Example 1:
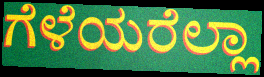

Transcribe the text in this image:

ಗೆಳೆಯರೆಲ್ಲಾ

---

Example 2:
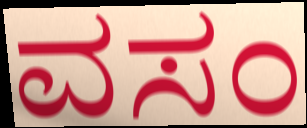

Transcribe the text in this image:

ವಸಂ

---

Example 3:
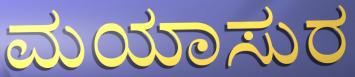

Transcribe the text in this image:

ಮಯಾಸುರ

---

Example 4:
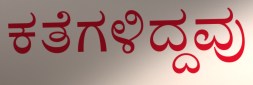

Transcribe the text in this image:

ಕತೆಗಳಿದ್ದವು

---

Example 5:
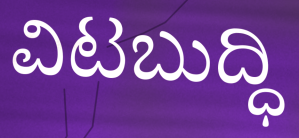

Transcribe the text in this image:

ವಿಟಬುದ್ಧಿ